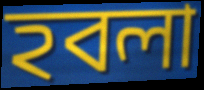
হবলা